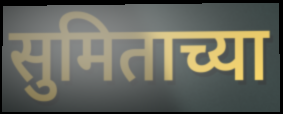
सुमिताच्या